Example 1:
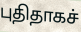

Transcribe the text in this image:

புதிதாகச்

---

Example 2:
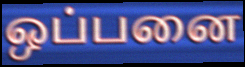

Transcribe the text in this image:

ஒப்பனை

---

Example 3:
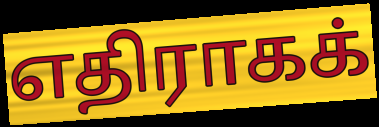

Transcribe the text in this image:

எதிராகக்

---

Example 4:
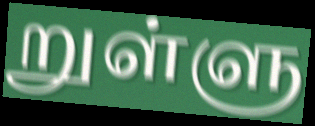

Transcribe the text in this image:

றுள்ளு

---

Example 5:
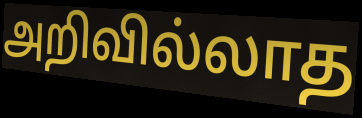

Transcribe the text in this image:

அறிவில்லாத